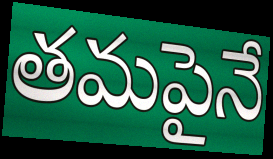
తమపైనే